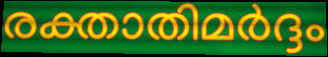
രക്താതിമർദ്ദം